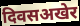
दिवसअखेर